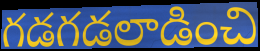
గడగడలాడించి